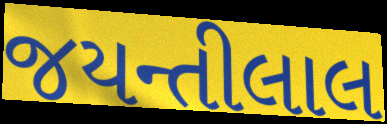
જયન્તીલાલ